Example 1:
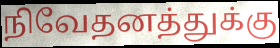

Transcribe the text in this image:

நிவேதனத்துக்கு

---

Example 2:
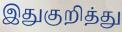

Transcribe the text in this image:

இதுகுறித்து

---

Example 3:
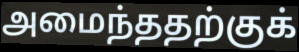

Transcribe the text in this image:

அமைந்ததற்குக்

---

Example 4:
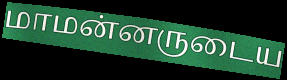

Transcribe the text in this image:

மாமன்னருடைய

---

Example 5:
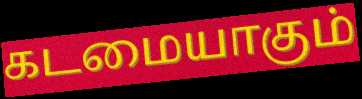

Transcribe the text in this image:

கடமையாகும்